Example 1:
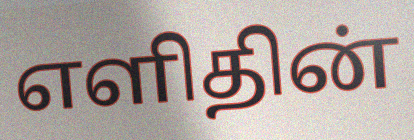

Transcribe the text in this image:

எளிதின்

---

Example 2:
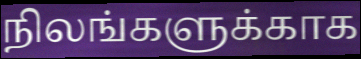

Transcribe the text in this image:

நிலங்களுக்காக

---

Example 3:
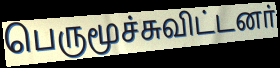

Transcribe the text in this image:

பெருமூச்சுவிட்டனர்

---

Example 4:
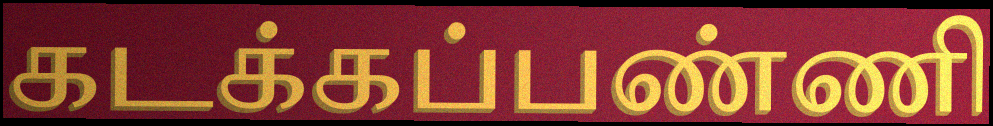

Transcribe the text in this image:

கடக்கப்பண்ணி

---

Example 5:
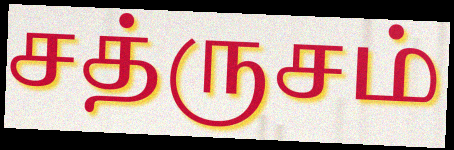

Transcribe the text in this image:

சத்ருசம்